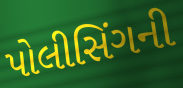
પોલીસિંગની